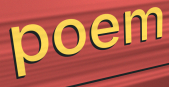
poem